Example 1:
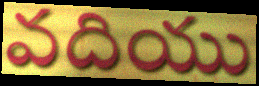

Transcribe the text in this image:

వదియు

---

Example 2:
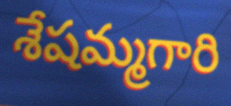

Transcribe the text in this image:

శేషమ్మగారి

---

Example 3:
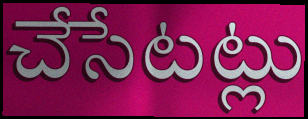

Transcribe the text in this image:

చేసేటట్లు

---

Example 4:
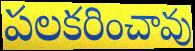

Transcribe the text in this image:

పలకరించావు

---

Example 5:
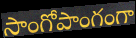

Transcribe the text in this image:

సాంగోపాంగంగా